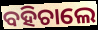
ବହିଚାଲେ